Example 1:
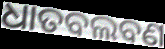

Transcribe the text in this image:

ଧାତବଲବଣ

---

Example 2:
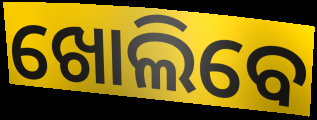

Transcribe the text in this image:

ଖୋଲିବେ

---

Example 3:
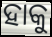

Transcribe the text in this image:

ହାକୁ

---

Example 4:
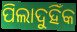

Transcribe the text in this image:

ପିଲାଦୁହିଁକ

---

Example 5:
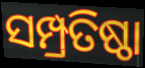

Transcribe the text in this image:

ସମ୍ପ୍ରତିଷ୍ଠା